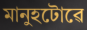
মানুহটোৱে